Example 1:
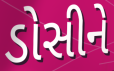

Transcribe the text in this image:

ડોસીને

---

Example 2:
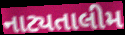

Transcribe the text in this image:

નાટ્યતાલીમ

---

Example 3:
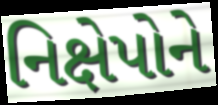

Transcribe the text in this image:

નિક્ષેપોને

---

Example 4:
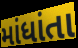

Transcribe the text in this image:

માંધાંતા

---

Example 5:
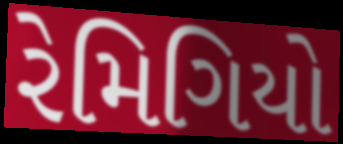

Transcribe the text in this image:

રેમિગિયો